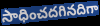
సాధించదగినదిగా